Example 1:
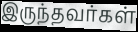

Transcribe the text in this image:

இருந்தவர்கள்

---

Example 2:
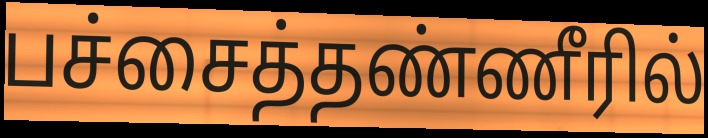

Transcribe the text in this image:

பச்சைத்தண்ணீரில்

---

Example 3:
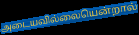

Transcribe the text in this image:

அடையவில்லையென்றால்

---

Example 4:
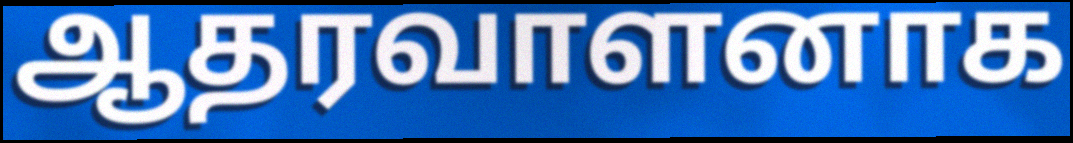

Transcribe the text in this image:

ஆதரவாளனாக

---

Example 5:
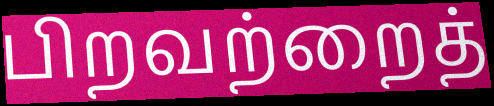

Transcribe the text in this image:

பிறவற்றைத்